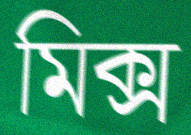
মিক্স